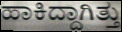
ಹಾಕಿದ್ದಾಗಿತ್ತು